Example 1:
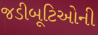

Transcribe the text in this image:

જડીબૂટિઓની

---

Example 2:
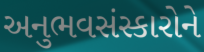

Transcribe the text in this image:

અનુભવસંસ્કારોને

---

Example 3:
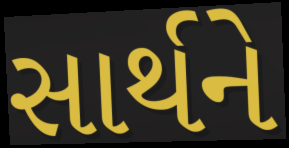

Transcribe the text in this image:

સાર્થને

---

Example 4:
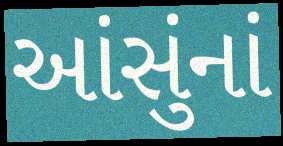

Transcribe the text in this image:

આંસુંનાં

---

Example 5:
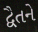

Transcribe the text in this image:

દ્વૈતને